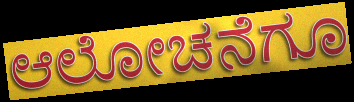
ಆಲೋಚನೆಗೂ